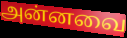
அன்னவை